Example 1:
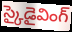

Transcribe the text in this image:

స్కైడైవింగ్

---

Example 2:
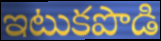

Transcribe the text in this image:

ఇటుకపొడి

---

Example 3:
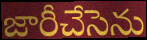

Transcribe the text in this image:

జారీచేసెను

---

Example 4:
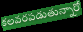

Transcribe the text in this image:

కలవరపడుతున్నారో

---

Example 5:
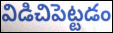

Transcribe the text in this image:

విడిచిపెట్టడం